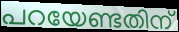
പറയേണ്ടതിന്